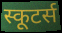
स्कूटर्स